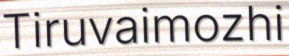
Tiruvaimozhi